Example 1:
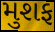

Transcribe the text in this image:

મુશફ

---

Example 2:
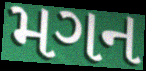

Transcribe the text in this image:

મગન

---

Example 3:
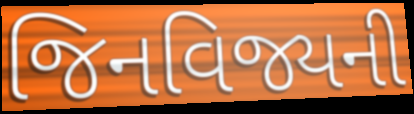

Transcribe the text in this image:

જિનવિજ્યની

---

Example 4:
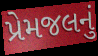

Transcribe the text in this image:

પ્રેમજલનું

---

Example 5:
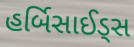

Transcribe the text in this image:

હર્બિસાઈડ્સ